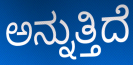
ಅನ್ನುತ್ತಿದೆ